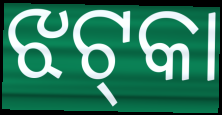
ଝଟ୍‍କା